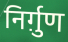
निर्ग़ुण